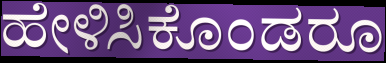
ಹೇಳಿಸಿಕೊಂಡರೂ